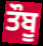
ਤੌਬੂ